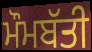
ਮੌਮਬੱਤੀ